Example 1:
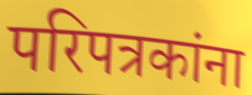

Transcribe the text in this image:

परिपत्रकांना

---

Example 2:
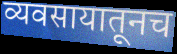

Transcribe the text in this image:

व्यवसायातूनच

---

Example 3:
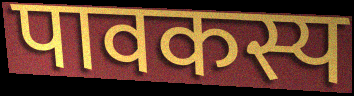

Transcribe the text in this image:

पावकस्य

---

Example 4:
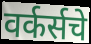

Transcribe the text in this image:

वर्कर्सचे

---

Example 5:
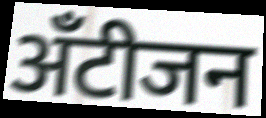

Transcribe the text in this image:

अँटीजन